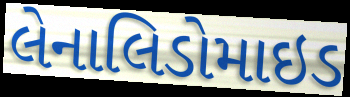
લેનાલિડોમાઇડ